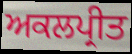
ਅਕਲਪ੍ਰੀਤ